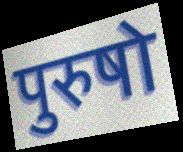
पुरुषो